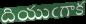
దియుఁగాక